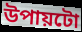
উপায়টো